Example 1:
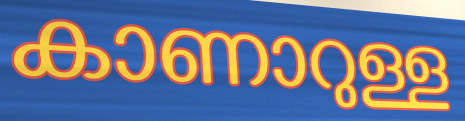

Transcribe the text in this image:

കാണാറുള്ള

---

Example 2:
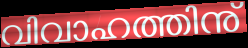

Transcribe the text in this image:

വിവാഹത്തിനു്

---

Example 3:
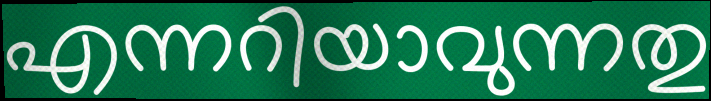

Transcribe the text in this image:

എന്നറിയാവുന്നതു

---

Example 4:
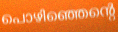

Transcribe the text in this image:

പൊഴിഞ്ഞെന്റെ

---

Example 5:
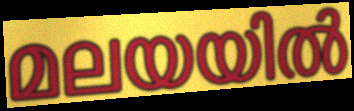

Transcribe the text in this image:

മലയയിൽ